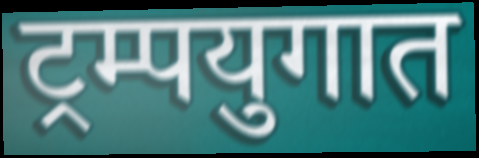
ट्रम्पयुगात